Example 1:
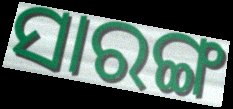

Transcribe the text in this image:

ସାରଙ୍ଗ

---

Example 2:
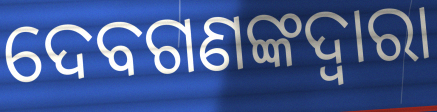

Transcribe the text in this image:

ଦେବଗଣଙ୍କଦ୍ୱାରା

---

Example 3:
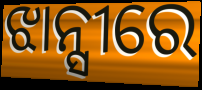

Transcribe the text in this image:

ଝାନ୍ସୀରେ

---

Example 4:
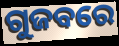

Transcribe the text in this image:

ଗୁଜବରେ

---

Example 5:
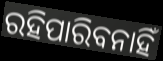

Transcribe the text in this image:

ରହିପାରିବନାହିଁ